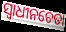
ସ୍ୱାଧୀନଚେତା